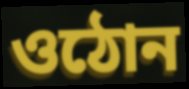
ওঠোন